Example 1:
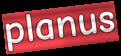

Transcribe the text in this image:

planus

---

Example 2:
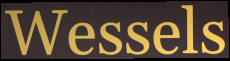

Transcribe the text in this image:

Wessels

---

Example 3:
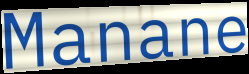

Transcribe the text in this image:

Manane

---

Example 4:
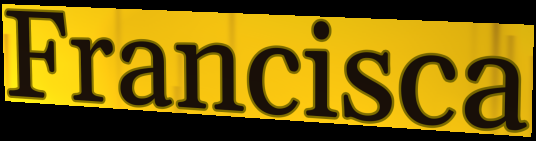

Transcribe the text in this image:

Francisca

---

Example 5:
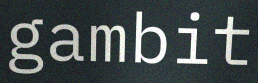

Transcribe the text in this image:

gambit